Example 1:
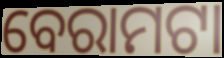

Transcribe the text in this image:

ବେରାମଟା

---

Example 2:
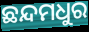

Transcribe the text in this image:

ଛନ୍ଦମଧୁର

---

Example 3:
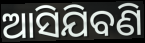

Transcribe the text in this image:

ଆସିଯିବଣି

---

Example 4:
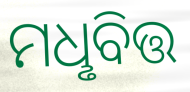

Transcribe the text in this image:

ମଧୢବିତ୍ତ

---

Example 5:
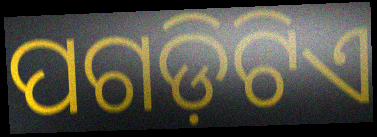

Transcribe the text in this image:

ପଗଡ଼ିଟିଏ